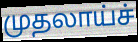
முதலாய்ச்